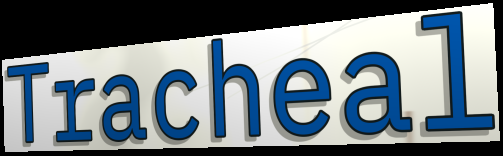
Tracheal